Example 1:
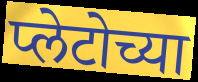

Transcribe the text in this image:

प्लेटोच्या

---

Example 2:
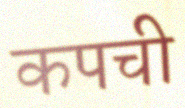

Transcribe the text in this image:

कपची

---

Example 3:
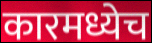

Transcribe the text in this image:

कारमध्येच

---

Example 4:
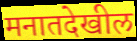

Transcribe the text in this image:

मनातदेखील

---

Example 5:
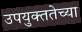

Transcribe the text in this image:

उपयुक्ततेच्या